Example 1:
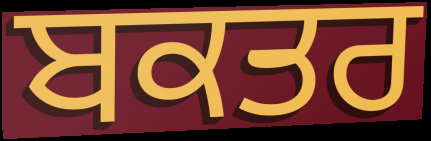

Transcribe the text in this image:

ਬਕਤਰ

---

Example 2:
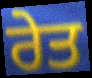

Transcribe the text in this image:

ਰੇਤ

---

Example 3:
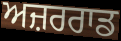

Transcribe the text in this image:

ਅਜ਼ਰਰਾਡ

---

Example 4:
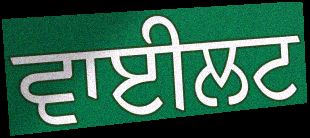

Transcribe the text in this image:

ਵਾਈਲਟ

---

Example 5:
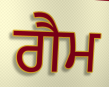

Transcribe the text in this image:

ਗੈਮ